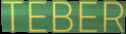
TEBER